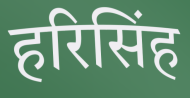
हरिसिंह